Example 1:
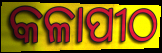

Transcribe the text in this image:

କଳାପୀଠ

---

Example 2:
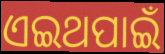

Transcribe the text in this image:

ଏଇଥପାଇଁ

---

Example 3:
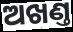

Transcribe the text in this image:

ଅଖଣ୍ତ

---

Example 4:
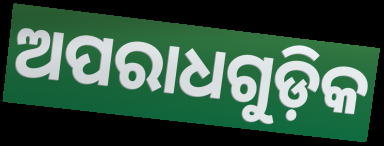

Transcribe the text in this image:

ଅପରାଧଗୁଡ଼ିକ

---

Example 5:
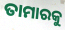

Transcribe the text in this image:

ତାମାରକୁ